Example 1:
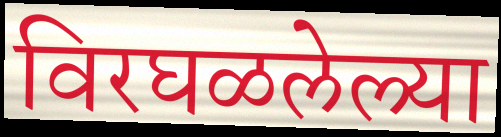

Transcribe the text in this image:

विरघळलेल्या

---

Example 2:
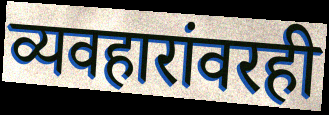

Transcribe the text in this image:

व्यवहारांवरही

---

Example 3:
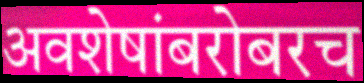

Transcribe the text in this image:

अवशेषांबरोबरच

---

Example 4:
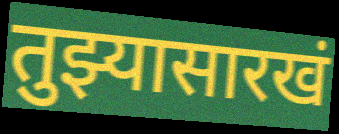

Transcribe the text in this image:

तुझ्यासारखं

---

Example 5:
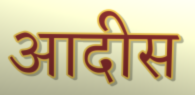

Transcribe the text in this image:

आदीस